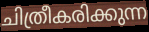
ചിത്രീകരിക്കുന്ന